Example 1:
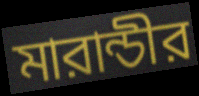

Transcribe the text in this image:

মারান্ডীর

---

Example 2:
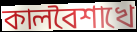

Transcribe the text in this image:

কালবৈশাখে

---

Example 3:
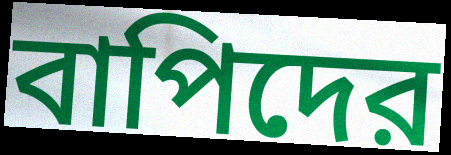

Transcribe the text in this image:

বাপিদের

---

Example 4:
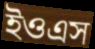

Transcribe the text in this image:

ইওএস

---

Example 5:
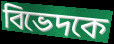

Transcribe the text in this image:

বিভেদকে